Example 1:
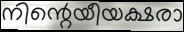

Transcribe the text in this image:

നിന്റെയീയക്ഷരാ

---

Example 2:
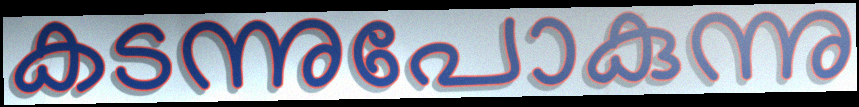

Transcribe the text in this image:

കടന്നുപോകുന്നു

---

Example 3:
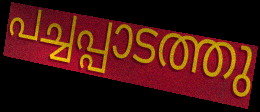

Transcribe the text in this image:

പച്ചപ്പാടത്തു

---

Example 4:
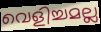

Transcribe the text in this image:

വെളിച്ചമല്ല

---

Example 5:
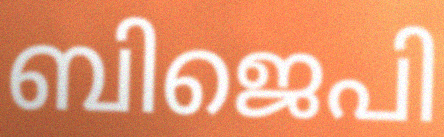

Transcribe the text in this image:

ബിജെപി